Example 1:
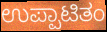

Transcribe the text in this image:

ಉಪ್ಪಾಟಿತಂ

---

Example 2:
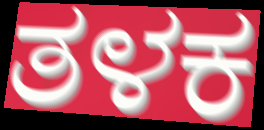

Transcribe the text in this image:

ತಳಕ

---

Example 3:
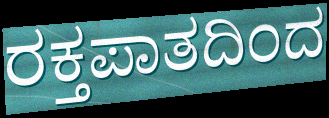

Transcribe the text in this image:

ರಕ್ತಪಾತದಿಂದ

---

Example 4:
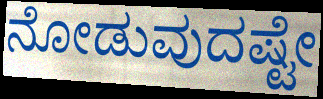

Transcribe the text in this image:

ನೋಡುವುದಷ್ಟೇ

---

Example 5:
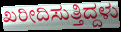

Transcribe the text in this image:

ಖರೀದಿಸುತ್ತಿದ್ದಳು